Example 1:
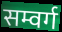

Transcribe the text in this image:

सम्वर्ग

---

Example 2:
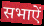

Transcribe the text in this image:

सभाऐं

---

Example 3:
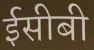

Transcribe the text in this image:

ईसीबी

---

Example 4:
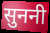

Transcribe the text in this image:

सुननी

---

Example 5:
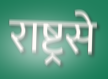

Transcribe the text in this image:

राष्ट्रसे